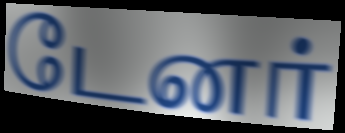
டேனர்